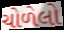
ચોળેલો